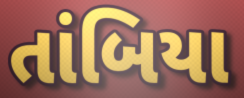
તાંબિયા